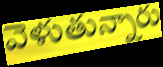
వెళుతున్నారు